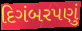
દિગંબરપણું